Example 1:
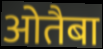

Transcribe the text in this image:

ओतैबा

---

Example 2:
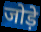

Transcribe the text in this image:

जोड़े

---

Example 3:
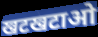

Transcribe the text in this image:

खटखटाओ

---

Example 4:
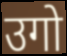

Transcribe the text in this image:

उगो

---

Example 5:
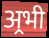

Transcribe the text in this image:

अ्रभी